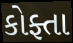
કોફ્તા